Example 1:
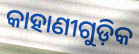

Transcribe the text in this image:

କାହାଣୀଗୁଡ଼ିକ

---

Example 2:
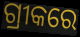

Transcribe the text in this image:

ଗ୍ରୀକରେ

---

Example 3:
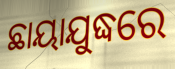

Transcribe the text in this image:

ଛାୟାଯୁଦ୍ଧରେ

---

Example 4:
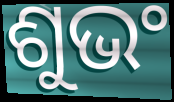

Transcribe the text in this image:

ଶୁଭଂ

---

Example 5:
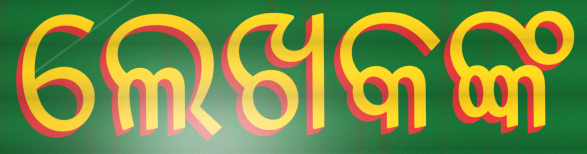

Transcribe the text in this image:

ଲେଖକଙ୍କ